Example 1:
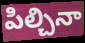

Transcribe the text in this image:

పిల్చినా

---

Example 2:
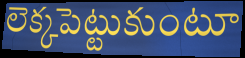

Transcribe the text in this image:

లెక్కపెట్టుకుంటూ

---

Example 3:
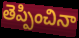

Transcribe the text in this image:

తెప్పించినా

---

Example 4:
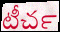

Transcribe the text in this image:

టీచర్‍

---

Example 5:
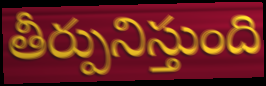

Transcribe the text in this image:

తీర్పునిస్తుంది